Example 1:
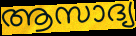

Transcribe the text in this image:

ആസാദ്യ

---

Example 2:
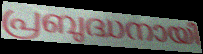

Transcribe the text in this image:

പ്രബുദ്ധനായി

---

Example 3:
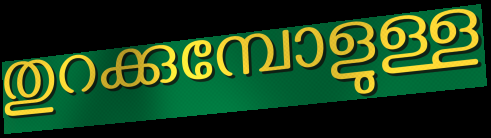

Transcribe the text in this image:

തുറക്കുമ്പോളുള്ള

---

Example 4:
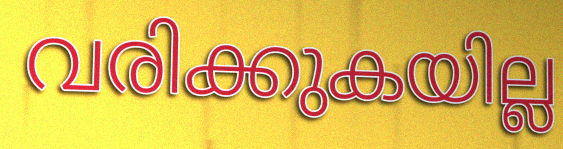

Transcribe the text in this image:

വരിക്കുകയില്ല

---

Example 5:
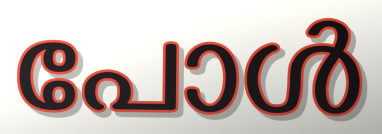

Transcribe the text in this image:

പോൾ